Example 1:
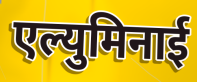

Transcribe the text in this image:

एल्युमिनाई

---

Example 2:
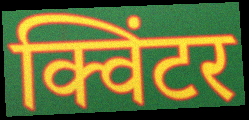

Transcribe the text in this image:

क्विंटर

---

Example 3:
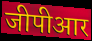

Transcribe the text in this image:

जीपीआर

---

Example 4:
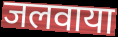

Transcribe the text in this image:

जलवाया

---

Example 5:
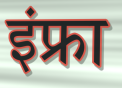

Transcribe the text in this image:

इंफ्रा